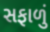
સફાળું